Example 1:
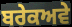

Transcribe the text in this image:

ਬਰੇਕਅਵੇ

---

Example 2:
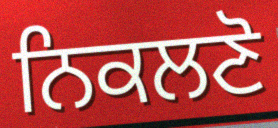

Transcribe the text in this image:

ਨਿਕਲਣੋ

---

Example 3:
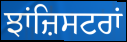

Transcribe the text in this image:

ਝਾਂਜ਼ਿਸਟਰਾਂ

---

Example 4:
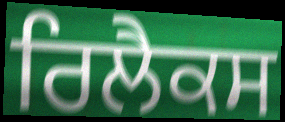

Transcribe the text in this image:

ਰਿਲੈਕਸ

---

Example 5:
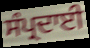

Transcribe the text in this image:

ਸੰਪ੍ਰਦਾਈ